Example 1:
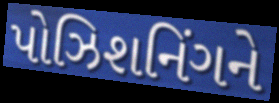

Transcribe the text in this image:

પોઝિશનિંગને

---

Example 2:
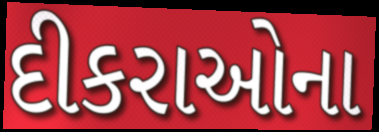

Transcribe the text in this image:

દીકરાઓના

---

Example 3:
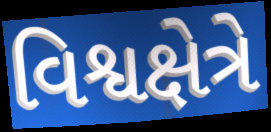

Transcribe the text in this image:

વિશ્વક્ષેત્રે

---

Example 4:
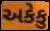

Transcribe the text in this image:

અકેકુ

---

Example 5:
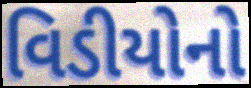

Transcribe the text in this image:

વિડીયોનો